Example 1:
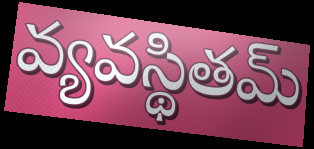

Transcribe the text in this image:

వ్యవస్థితమ్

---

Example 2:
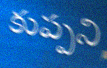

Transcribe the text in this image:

కుప్పని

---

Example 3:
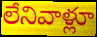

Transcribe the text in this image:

లేనివాళ్లూ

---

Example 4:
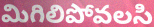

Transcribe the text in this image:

మిగిలిపోవలసి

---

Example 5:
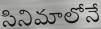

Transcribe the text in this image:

సినిమాలోనే